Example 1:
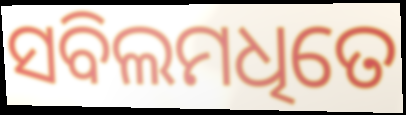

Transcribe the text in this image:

ସବିଲମଧିତେ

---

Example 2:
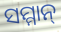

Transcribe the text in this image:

ସମ୍ମାନ୍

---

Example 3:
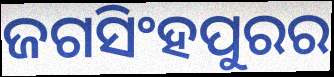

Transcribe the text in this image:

ଜଗସିଂହପୁରର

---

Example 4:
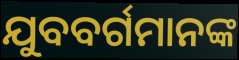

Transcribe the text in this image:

ଯୁବବର୍ଗମାନଙ୍କ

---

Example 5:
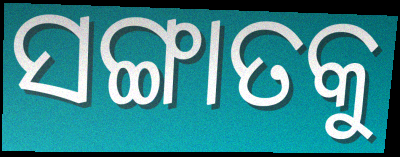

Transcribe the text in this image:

ସଙ୍ଗାତକୁ